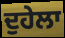
ਦੁਹੇਲਾ